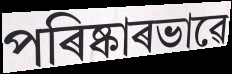
পৰিষ্কাৰভাৱে